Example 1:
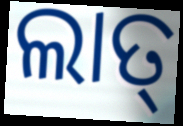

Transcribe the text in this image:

ଲାତ୍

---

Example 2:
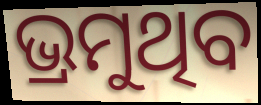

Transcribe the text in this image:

ଭ୍ରମୁଥିବ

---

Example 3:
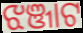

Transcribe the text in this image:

ଝଞ୍ଜାଟ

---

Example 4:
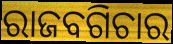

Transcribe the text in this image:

ରାଜବଗିଚାର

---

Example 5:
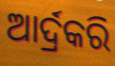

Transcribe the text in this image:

ଆର୍ଦ୍ରକରି